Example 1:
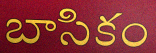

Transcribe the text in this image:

బాసికం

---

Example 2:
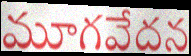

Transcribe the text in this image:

మూగవేదన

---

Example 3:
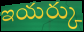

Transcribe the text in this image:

ఇయర్కు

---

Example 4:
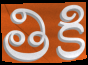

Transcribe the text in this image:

తికి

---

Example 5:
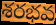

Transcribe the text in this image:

శరభవ